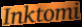
Inktomi